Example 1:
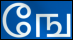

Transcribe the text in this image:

ஙே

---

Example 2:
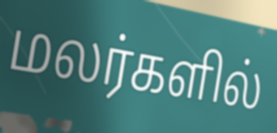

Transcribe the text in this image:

மலர்களில்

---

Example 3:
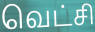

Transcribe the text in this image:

வெட்சி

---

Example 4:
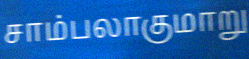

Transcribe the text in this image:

சாம்பலாகுமாறு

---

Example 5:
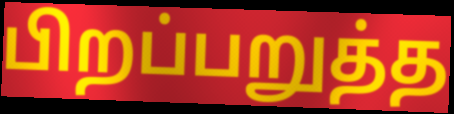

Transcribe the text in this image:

பிறப்பறுத்த